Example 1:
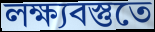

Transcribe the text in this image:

লক্ষ্যবস্তুতে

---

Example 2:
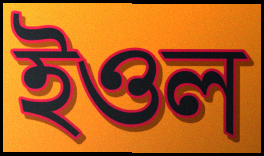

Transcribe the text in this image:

ইওল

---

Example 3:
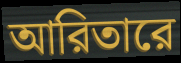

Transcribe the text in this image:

আরিতারে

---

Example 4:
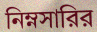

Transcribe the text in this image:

নিম্নসারির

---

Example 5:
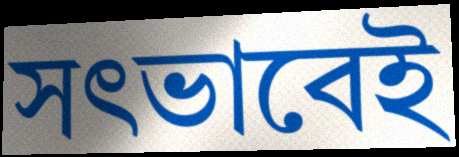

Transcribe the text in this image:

সৎভাবেই